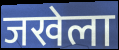
जखेला